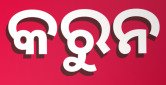
କରୁନ